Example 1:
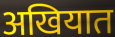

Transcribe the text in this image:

अखियात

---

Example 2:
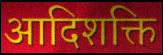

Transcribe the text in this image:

आदिशक्ति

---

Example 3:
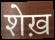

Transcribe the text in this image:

शेख़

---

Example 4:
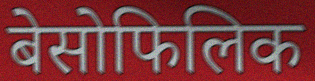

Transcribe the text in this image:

बेसोफिलिक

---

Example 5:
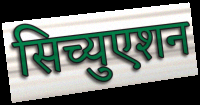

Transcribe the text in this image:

सिच्युएशन